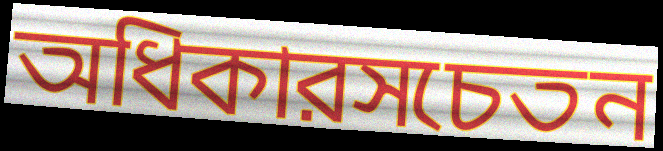
অধিকারসচেতন